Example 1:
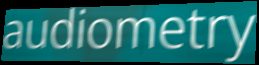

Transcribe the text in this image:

audiometry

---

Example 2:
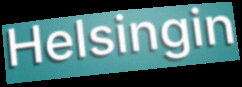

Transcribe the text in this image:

Helsingin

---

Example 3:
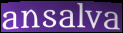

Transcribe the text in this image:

ansalva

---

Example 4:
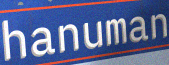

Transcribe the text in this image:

hanuman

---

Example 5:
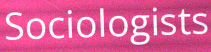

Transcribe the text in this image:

Sociologists